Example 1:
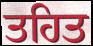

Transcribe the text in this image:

ਤਹਿਤ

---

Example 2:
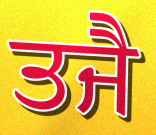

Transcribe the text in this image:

ਤਜੈ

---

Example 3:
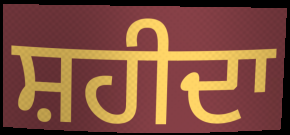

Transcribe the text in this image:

ਸ਼ਹੀਦਾ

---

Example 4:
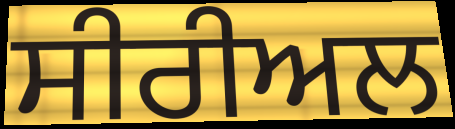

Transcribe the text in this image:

ਸੀਰੀਅਲ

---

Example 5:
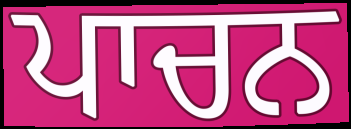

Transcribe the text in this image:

ਪਾਚਨ